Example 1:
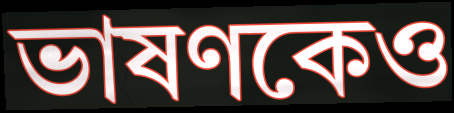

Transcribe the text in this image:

ভাষণকেও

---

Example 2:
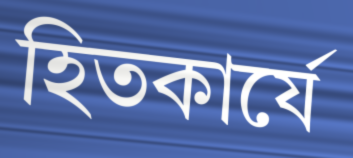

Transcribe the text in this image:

হিতকার্যে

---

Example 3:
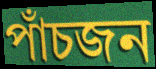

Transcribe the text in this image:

পাঁচজন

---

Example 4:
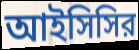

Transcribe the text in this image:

আইসিসির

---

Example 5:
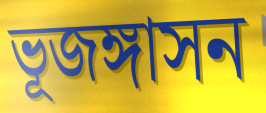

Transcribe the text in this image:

ভূজঙ্গাসন